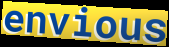
envious